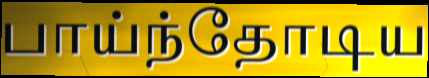
பாய்ந்தோடிய